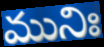
మునిః